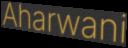
Aharwani